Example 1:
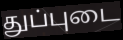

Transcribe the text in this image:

துப்புடை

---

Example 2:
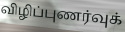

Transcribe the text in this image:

விழிப்புணர்வுக்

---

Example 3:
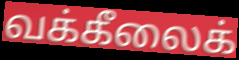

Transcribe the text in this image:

வக்கீலைக்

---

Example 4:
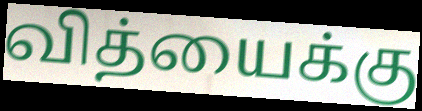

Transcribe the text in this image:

வித்யைக்கு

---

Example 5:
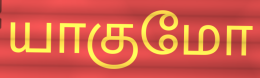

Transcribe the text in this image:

யாகுமோ